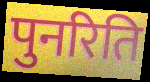
पुनरिति